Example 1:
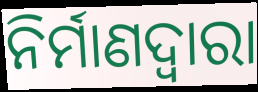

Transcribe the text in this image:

ନିର୍ମାଣଦ୍ୱାରା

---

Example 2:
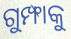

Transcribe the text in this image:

ଗୁମ୍ଫାକୁ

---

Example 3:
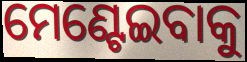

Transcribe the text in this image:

ମେଣ୍ଟେଇବାକୁ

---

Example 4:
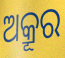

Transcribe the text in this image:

ଅକ୍ରୂର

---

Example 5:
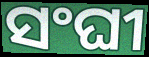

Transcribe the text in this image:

ସଂଘୀ